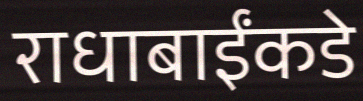
राधाबाईंकडे